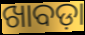
ଖାବଡ଼ା